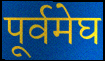
पूर्वमेघ